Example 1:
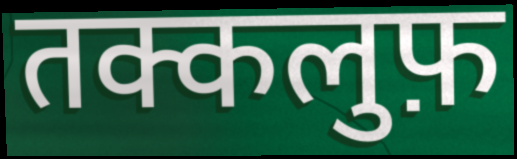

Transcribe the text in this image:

तक्कलुफ़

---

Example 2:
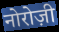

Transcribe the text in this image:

नोरोज़ी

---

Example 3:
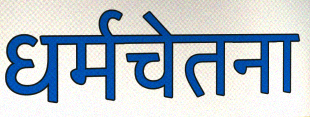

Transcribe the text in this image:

धर्मचेतना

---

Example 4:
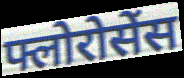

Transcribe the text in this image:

फ्लोरोसेंस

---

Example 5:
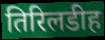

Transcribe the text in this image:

तिरिलडीह